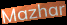
Mazhar